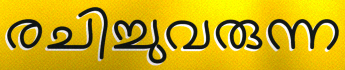
രചിച്ചുവരുന്ന